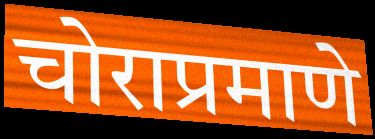
चोराप्रमाणे